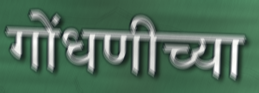
गोंधणीच्या